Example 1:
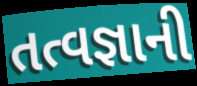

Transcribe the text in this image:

તત્વજ્ઞાની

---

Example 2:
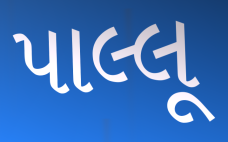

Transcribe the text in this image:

પાલ્લૂ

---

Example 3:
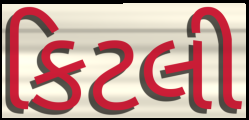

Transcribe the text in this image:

કિટલી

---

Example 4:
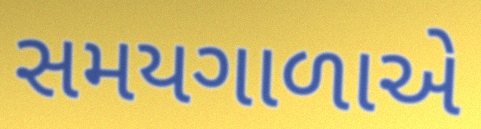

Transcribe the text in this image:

સમયગાળાએ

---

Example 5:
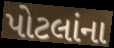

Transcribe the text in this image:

પોટલાંના